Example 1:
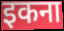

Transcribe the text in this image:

इकना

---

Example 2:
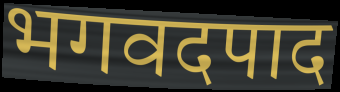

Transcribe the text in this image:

भगवदपाद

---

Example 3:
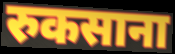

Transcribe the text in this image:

रुकसाना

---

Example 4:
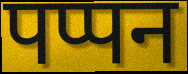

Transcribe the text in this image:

पप्पन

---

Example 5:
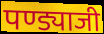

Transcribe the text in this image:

पण्ड्याजी